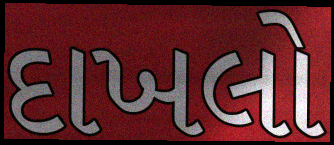
દાખલો